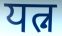
यत्न